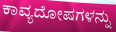
ಕಾವ್ಯದೋಷಗಳನ್ನು